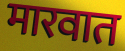
मारवात